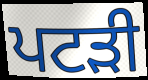
ਪਟੜੀ